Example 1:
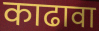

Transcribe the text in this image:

काढावा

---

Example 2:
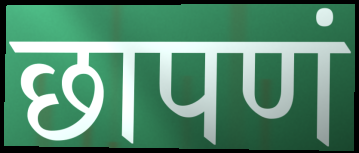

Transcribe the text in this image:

छापणं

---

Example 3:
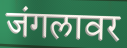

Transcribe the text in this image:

जंगलावर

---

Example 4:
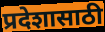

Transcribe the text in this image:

प्रदेशासाठी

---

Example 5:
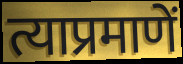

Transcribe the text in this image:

त्याप्रमाणें